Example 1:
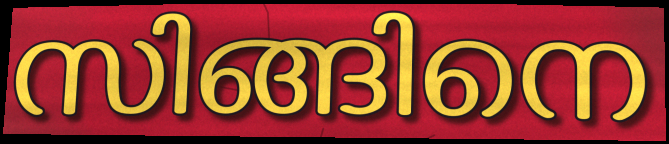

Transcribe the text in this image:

സിങ്ങിനെ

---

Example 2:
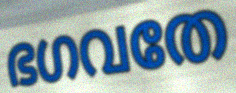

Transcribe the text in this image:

ഭഗവതേ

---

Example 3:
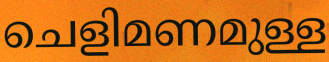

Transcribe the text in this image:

ചെളിമണമുള്ള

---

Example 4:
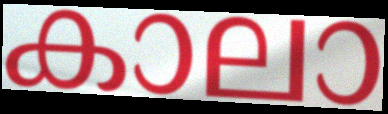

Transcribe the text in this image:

കാലാ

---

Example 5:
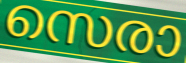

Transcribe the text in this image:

സെരാ